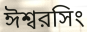
ঈশ্বরসিং